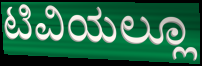
ಟಿವಿಯಲ್ಲೂ